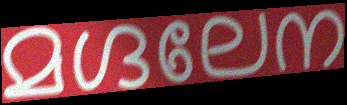
മഗ്ദലേന